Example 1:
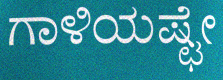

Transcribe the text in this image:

ಗಾಳಿಯಷ್ಟೇ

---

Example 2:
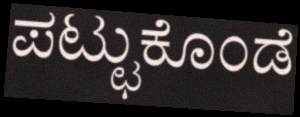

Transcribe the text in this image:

ಪಟ್ಟುಕೊಂಡೆ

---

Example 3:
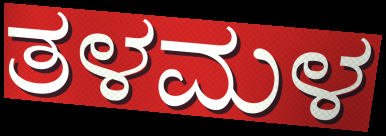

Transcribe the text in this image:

ತಳಮಳ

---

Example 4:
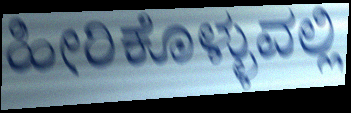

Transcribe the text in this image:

ಹೀರಿಕೊಳ್ಳುವಲ್ಲಿ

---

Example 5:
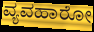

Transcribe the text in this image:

ವ್ಯವಹಾರೋ